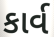
કાર્વ